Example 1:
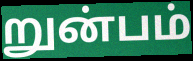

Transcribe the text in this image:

றுன்பம்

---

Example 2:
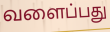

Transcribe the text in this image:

வளைப்பது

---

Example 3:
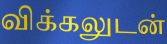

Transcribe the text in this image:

விக்கலுடன்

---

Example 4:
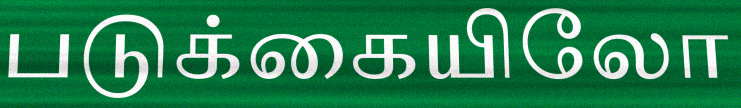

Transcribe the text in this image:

படுக்கையிலோ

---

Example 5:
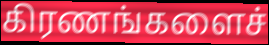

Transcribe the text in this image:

கிரணங்களைச்